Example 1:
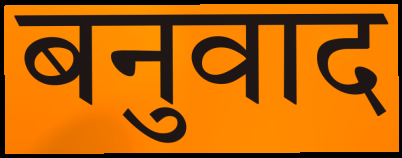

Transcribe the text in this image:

बनुवाद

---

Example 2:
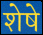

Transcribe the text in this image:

शेषे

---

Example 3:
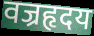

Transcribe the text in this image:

वज्रहृदय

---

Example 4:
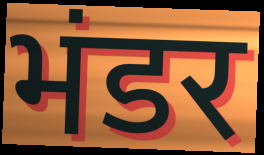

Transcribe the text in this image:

भंडर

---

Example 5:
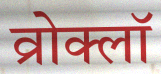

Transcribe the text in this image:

व्रोक्लॉ